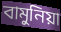
বামুনিয়া